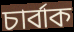
চার্বাক